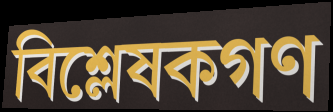
বিশ্লেষকগণ